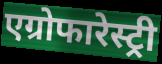
एग्रोफारेस्ट्री